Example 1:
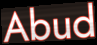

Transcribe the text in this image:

Abud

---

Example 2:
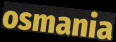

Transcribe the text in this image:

osmania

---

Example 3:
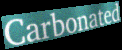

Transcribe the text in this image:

Carbonated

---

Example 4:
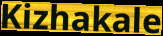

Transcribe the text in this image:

Kizhakale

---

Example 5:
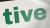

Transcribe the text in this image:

tive